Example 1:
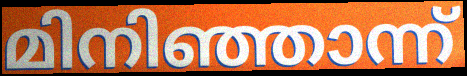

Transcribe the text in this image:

മിനിഞ്ഞാന്ന്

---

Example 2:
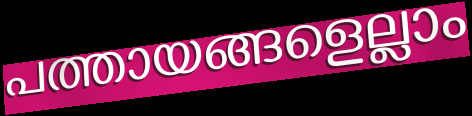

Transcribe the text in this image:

പത്തായങ്ങളെല്ലാം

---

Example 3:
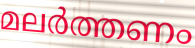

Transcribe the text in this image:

മലർത്തണം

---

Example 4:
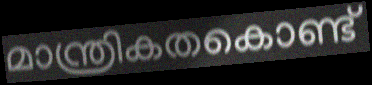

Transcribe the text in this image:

മാന്ത്രികതകൊണ്ട്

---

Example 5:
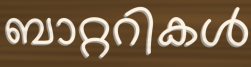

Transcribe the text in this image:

ബാറ്ററികൾ